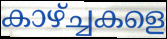
കാഴ്ച്ചകളെ